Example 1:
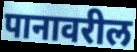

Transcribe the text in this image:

पानावरील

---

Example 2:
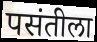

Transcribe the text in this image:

पसंतीला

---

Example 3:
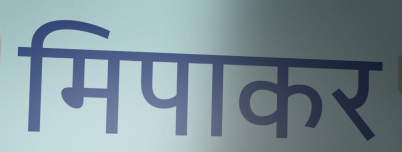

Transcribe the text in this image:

मिपाकर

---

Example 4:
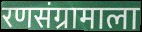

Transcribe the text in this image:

रणसंग्रामाला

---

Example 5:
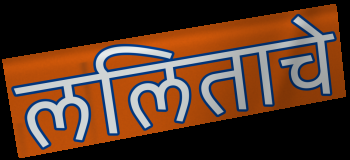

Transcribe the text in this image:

ललिताचे